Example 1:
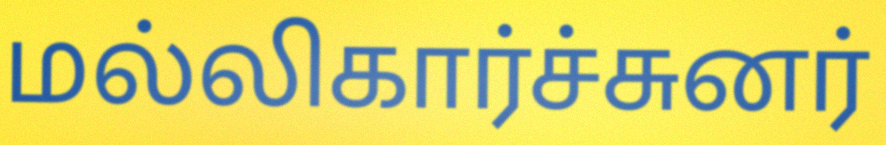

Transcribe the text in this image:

மல்லிகார்ச்சுனர்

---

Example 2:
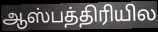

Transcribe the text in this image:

ஆஸ்பத்திரியில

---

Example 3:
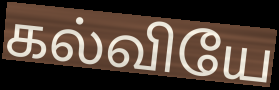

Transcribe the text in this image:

கல்வியே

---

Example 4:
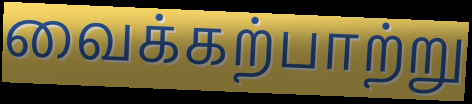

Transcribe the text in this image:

வைக்கற்பாற்று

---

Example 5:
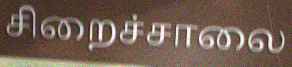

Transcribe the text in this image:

சிறைச்சாலை